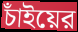
চাঁইয়ের